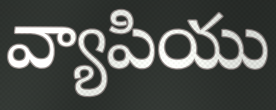
వ్యాపియు